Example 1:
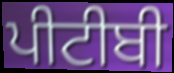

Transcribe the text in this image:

ਪੀਟੀਬੀ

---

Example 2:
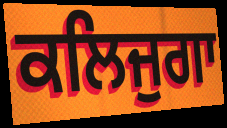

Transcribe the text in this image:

ਕਲਿਜੁਗਾ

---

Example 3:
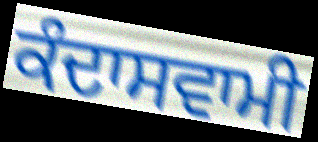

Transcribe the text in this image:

ਕੰਦਾਸਵਾਮੀ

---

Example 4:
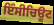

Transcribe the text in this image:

ਇੰਸੀਚਿਊਟ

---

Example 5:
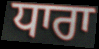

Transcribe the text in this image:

ਧਾਰਾ